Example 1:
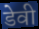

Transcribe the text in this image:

डेवी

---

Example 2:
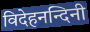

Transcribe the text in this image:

विदेहनन्दिनी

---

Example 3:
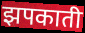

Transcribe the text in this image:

झपकाती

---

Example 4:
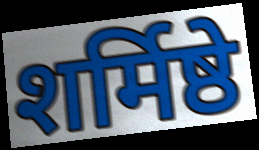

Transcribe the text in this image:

शर्मिष्ठे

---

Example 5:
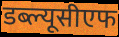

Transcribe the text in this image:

डब्ल्यूसीएफ